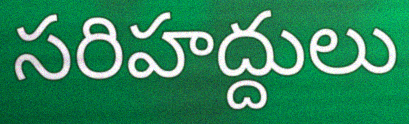
సరిహద్దులు